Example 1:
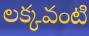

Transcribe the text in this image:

లక్కవంటి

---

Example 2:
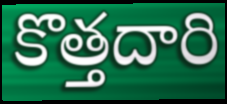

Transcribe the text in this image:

కొత్తదారి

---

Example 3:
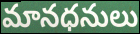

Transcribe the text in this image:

మానధనులు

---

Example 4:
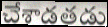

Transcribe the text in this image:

చేశాడతడు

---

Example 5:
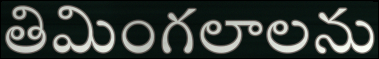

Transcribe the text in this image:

తిమింగలాలను